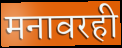
मनावरही